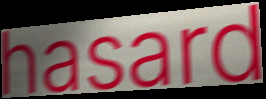
hasard